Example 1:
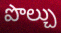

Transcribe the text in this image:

పొల్చు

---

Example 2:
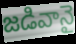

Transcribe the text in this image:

జడివానై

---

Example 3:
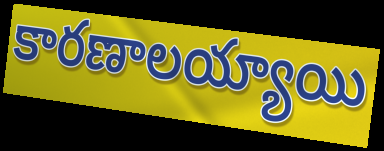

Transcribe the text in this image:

కారణాలయ్యాయి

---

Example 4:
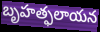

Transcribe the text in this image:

బృహత్ఫలాయన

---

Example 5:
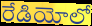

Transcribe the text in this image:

రేడియోలో